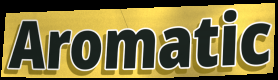
Aromatic